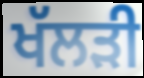
ਖੱਲੜੀ